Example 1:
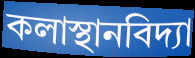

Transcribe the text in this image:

কলাস্থানবিদ্যা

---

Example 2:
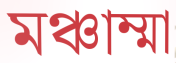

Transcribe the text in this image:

মঞ্চাম্মা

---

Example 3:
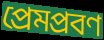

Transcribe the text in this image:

প্রেমপ্রবণ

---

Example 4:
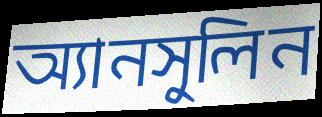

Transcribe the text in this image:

অ্যানসুলিন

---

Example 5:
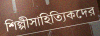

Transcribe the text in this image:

শিল্পীসাহিত্যিকদের